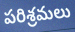
పరిశ్రమలు